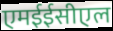
एमईईसीएल